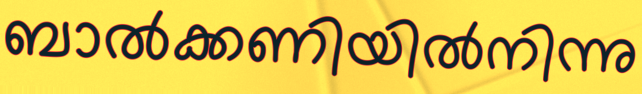
ബാൽക്കണിയിൽനിന്നു